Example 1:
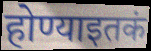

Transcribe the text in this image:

होण्याइतकं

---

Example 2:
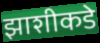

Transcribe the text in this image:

झाशीकडे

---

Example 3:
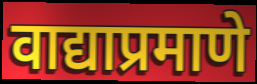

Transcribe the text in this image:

वाद्याप्रमाणे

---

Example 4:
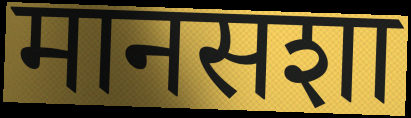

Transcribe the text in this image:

मानसशा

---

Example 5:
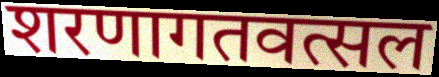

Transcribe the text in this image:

शरणागतवत्सल